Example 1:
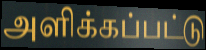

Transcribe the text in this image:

அளிக்கப்பட்டு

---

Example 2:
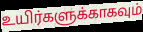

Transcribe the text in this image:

உயிர்களுக்காகவும்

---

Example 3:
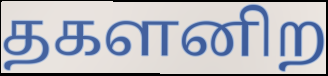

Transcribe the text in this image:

தகளனிற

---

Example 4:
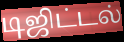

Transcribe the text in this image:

டிஜிட்டல்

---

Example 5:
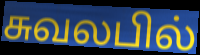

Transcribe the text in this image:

சுவலபில்